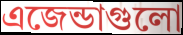
এজেন্ডাগুলো